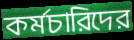
কর্মচারিদের